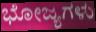
ಭೋಜ್ಯಗಳು